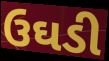
ઉઘડી